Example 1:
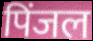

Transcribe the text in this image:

पिंजल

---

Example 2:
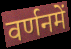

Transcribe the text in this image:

वर्णनमें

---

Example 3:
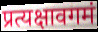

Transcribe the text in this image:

प्रत्यक्षावगमं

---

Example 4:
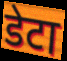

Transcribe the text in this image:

डेटा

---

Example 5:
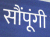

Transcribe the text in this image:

सौंपूंगी